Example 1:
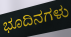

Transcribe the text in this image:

ಭೂದಿನಗಳು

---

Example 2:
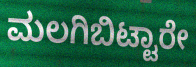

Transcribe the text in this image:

ಮಲಗಿಬಿಟ್ಟಾರೇ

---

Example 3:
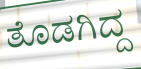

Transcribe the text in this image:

ತೊಡಗಿದ್ದ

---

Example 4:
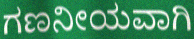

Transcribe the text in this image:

ಗಣನೀಯವಾಗಿ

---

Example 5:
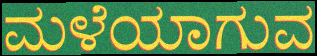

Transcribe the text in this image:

ಮಳೆಯಾಗುವ